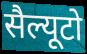
सैल्यूटो